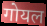
गोयल